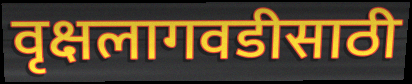
वृक्षलागवडीसाठी